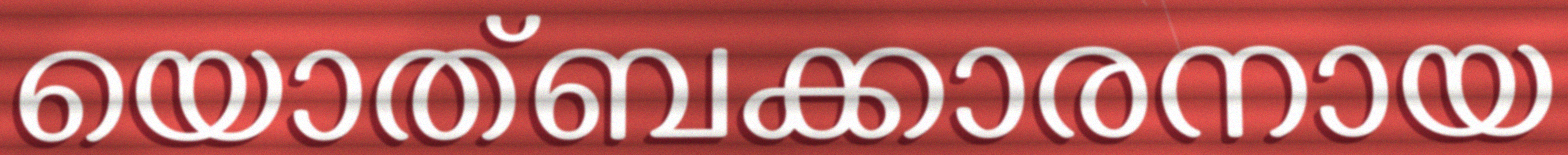
യൊത്ബക്കാരനായ